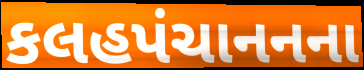
કલહપંચાનનના